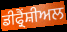
ਡੀਫ੍ਰੈਂਸ਼ੀਅਲ